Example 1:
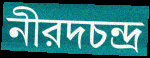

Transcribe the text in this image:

নীরদচন্দ্র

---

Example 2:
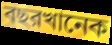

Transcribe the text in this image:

বছরখানেক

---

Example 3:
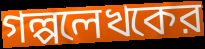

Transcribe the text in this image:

গল্পলেখকের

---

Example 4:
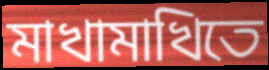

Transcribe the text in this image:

মাখামাখিতে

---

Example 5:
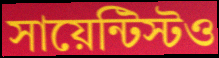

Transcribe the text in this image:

সায়েন্টিস্টও